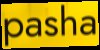
pasha